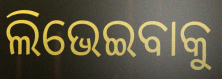
ଲିଭେଇବାକୁ